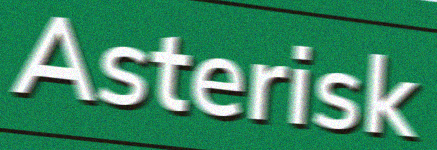
Asterisk